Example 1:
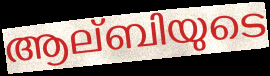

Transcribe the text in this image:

ആല്ബിയുടെ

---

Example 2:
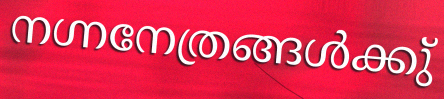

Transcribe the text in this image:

നഗ്നനേത്രങ്ങൾക്കു്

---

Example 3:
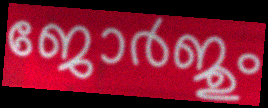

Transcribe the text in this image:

ജോർജും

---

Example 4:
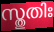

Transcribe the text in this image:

സ്തുതിഃ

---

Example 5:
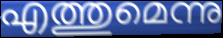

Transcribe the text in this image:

എത്തുമെന്നു